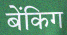
बेंकिग